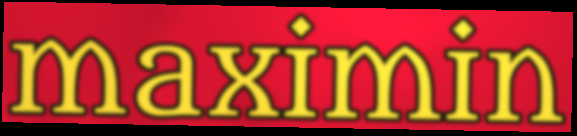
maximin